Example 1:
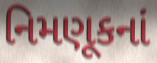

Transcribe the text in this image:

નિમણૂકનાં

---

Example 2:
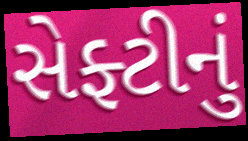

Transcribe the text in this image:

સેફ્ટીનું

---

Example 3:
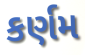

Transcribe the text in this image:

કર્ણમ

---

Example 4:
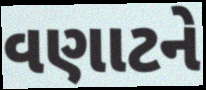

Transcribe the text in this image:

વણાટને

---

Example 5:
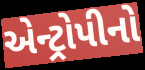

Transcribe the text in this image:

એન્ટ્રોપીનો